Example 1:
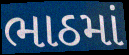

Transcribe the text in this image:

ભાઠમાં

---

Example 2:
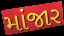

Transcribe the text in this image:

માંજાર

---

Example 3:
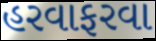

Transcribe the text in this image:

હરવાફરવા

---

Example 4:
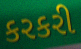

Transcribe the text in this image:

કરકરી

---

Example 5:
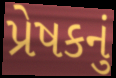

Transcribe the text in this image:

પ્રેષકનું